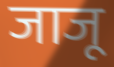
जाजू